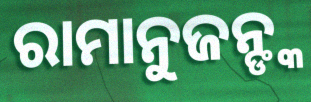
ରାମାନୁଜନ୍ଙ୍କ